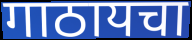
गाठायचा